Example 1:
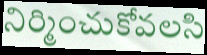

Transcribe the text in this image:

నిర్మించుకోవలసి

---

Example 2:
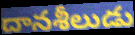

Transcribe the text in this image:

దానశీలుడు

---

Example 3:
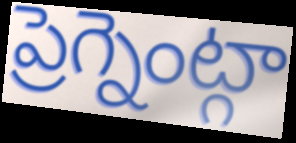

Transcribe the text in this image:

ప్రెగ్నెంట్గా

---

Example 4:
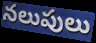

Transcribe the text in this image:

నలుపులు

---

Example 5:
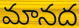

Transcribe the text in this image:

మానద